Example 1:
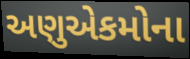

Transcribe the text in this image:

અણુએકમોના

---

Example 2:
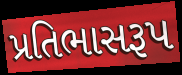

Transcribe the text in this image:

પ્રતિભાસરૂપ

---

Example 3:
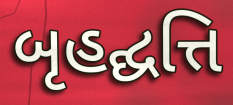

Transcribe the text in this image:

બૃહદ્ઘત્તિ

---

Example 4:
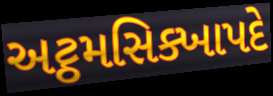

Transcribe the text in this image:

અટ્ઠમસિક્ખાપદે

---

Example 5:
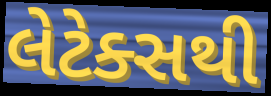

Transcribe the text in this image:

લેટેક્સથી